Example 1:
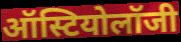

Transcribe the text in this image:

ऑस्टियोलॉजी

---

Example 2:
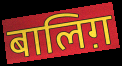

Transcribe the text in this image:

बालिग़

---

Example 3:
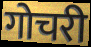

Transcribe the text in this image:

गोचरी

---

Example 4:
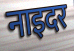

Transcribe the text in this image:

नाइदर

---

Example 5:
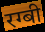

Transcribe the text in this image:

रग्‍बी